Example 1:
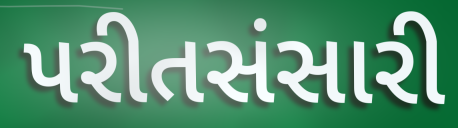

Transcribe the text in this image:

પરીતસંસારી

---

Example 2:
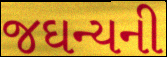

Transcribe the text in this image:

જઘન્યની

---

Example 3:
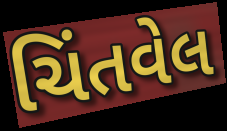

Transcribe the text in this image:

ચિંતવેલ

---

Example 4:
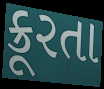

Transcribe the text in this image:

ક્રૂરતા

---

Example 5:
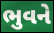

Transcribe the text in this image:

ભુવને